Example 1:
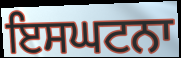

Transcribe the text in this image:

ਇਸਘਟਨਾ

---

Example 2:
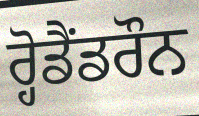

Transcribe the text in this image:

ਰ੍ਹੋਡੈਂਡਰੌਨ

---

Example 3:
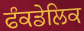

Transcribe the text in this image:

ਫੰਕਡੇਲਿਕ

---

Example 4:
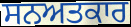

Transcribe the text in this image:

ਸਨਅਤਕਾਰ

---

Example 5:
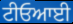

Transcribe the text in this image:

ਟੀਓਆਈ